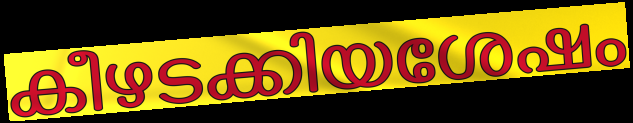
കീഴടക്കിയശേഷം